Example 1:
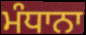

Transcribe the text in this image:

ਮੰਧਾਨਾ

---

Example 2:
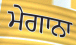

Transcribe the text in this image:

ਮੇਗਾਨਾ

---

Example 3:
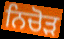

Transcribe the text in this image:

ਨਿਚੋੜ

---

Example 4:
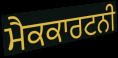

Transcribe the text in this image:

ਮੈਕਕਾਰਟਨੀ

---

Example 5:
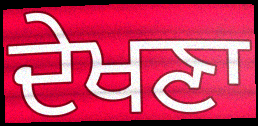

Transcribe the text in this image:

ਦੇਖਣਾ